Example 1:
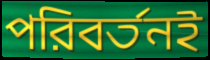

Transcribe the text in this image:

পরিবর্তনই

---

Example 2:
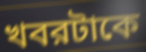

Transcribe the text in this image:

খবরটাকে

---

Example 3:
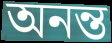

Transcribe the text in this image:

অনন্ত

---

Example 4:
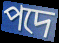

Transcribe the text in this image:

পদে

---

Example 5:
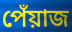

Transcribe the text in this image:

পেঁয়াজ